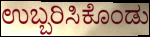
ಉಬ್ಬರಿಸಿಕೊಂಡು